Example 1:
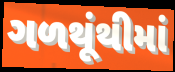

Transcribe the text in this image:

ગળથૂંથીમાં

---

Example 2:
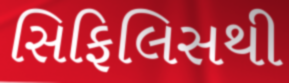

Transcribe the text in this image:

સિફિલિસથી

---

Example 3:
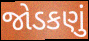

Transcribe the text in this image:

જોડકણું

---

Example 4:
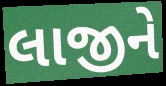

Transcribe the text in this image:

લાજીને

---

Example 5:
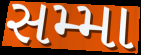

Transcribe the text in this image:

સમ્મા